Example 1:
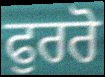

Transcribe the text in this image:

ਫੁਰਰੋ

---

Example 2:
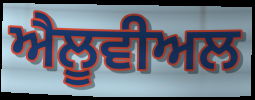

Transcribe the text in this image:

ਐਲੂਵੀਅਲ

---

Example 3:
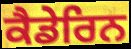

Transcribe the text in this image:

ਕੈਡੇਰਿਨ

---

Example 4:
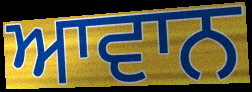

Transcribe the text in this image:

ਆਵਾਨ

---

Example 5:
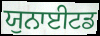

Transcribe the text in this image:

ਯੁਨਾਈਟਡ